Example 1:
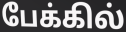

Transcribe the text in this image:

பேக்கில்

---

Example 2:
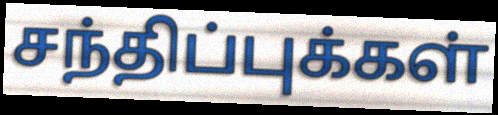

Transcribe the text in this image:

சந்திப்புக்கள்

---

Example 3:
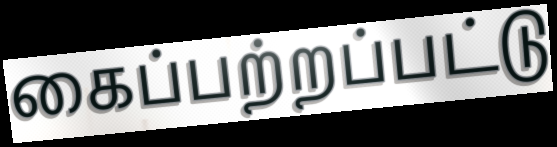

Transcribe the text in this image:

கைப்பற்றப்பட்டு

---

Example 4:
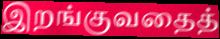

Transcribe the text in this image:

இறங்குவதைத்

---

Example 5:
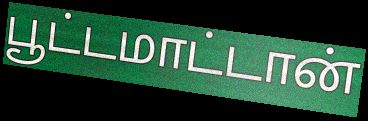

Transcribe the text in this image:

பூட்டமாட்டான்